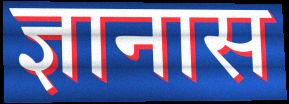
ज्ञानास